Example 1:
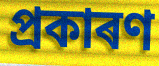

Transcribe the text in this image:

প্ৰকাৰণ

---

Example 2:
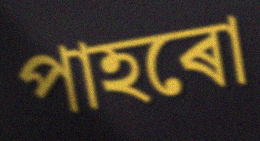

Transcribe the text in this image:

পাহৰো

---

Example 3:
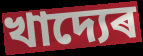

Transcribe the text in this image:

খাদ্যেৰ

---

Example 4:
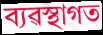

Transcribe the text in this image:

ব্যৱস্থাগত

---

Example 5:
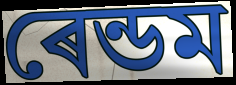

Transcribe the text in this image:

ৰেন্ডম